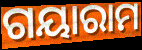
ଗୟାରାମ